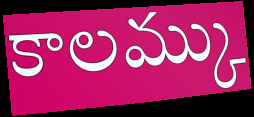
కాలమ్కు